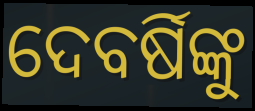
ଦେବର୍ଷିଙ୍କୁ